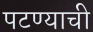
पटण्याची